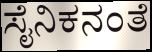
ಸೈನಿಕನಂತೆ